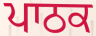
ਪਾਠਕ